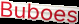
Buboes